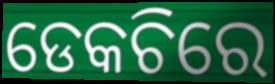
ଡେକଚିରେ